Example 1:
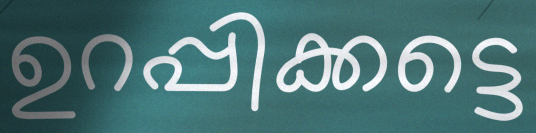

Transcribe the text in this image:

ഉറപ്പിക്കട്ടെ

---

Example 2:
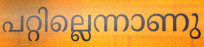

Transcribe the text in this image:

പറ്റില്ലെന്നാണു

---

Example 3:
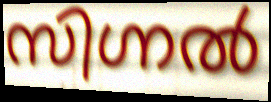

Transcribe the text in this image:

സിഗ്നൽ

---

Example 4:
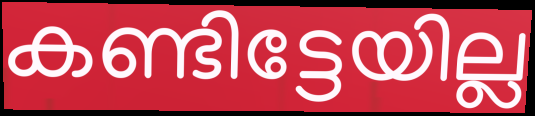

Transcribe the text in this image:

കണ്ടിട്ടേയില്ല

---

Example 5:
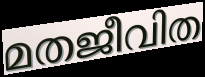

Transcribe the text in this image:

മതജീവിത